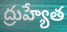
ద్రుహ్యేత